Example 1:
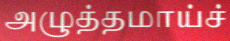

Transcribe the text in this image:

அழுத்தமாய்ச்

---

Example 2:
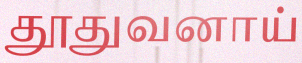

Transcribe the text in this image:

தூதுவனாய்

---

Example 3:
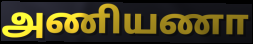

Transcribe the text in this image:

அணியணா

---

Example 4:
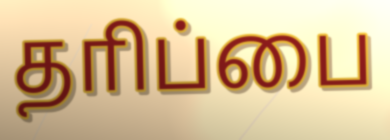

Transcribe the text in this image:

தரிப்பை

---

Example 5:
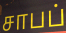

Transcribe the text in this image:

சாபப்